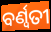
ବର୍ଣ୍ବତୀ